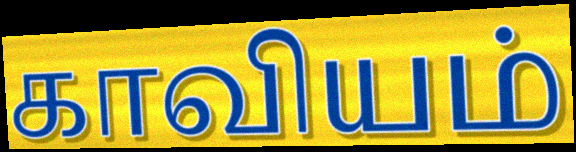
காவியம்